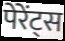
पेरेंट्स